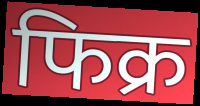
फिक्र